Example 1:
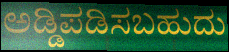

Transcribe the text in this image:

ಅಡ್ಡಿಪಡಿಸಬಹುದು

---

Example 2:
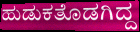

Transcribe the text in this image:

ಹುಡುಕತೊಡಗಿದ್ದ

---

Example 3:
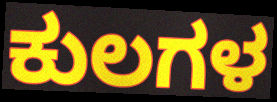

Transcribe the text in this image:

ಕುಲಗಳ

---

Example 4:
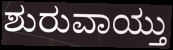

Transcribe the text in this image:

ಶುರುವಾಯ್ತು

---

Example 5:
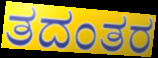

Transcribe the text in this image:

ತದಂತರ